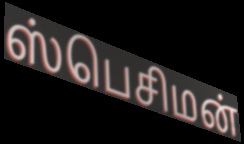
ஸ்பெசிமன்